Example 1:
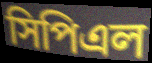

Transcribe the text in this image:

সিপিএল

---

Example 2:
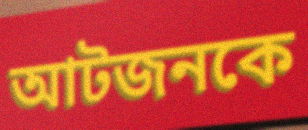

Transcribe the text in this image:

আটজনকে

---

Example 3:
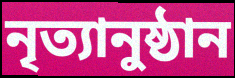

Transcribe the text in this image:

নৃত্যানুষ্ঠান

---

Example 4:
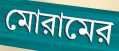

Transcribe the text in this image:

মোরামের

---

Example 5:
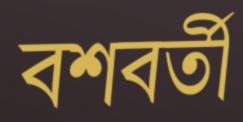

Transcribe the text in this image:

বশবর্তী